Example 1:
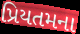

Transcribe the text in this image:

પ્રિયતમના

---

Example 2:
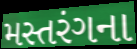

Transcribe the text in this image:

મસ્તરંગના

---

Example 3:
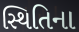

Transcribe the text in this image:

સ્થિતિના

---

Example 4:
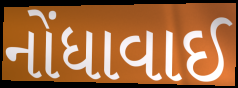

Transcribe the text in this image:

નોંધાવાઈ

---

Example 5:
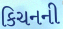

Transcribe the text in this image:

કિચનની